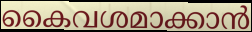
കൈവശമാക്കാൻ